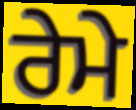
ਰੇਮੇ